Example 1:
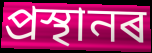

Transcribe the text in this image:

প্ৰস্থানৰ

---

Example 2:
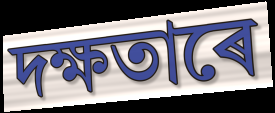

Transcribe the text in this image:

দক্ষতাৰে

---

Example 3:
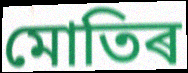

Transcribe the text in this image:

মোতিৰ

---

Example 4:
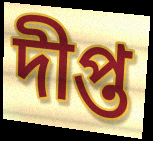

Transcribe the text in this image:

দীপ্ত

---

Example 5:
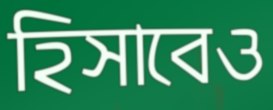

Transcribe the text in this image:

হিসাবেও